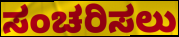
ಸಂಚರಿಸಲು